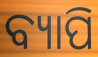
ବ୍ୟାପି